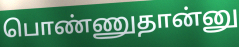
பொண்ணுதான்னு